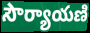
సౌర్యాయణి